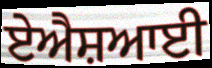
ਏਐਸ਼ਆਈ